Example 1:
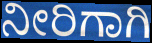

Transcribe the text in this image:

ನೀರಿಗಾಗಿ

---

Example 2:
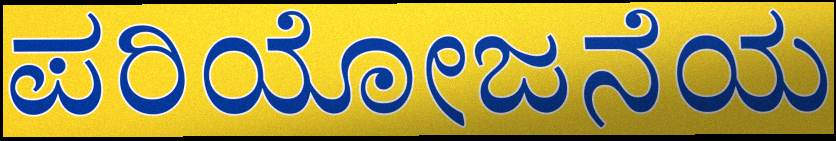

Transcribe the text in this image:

ಪರಿಯೋಜನೆಯ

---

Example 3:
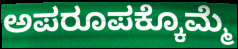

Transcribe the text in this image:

ಅಪರೂಪಕ್ಕೊಮ್ಮೆ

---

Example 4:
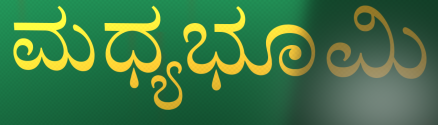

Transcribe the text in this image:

ಮಧ್ಯಭೂಮಿ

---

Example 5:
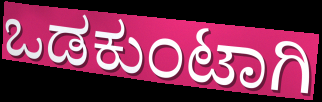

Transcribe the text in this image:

ಒಡಕುಂಟಾಗಿ